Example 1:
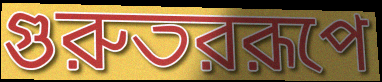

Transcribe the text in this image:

গুরুতররূপে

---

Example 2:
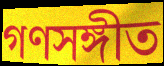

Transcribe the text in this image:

গণসঙ্গীত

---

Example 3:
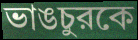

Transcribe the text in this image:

ভাঙচুরকে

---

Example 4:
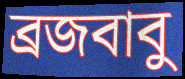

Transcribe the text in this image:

ব্রজবাবু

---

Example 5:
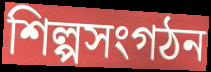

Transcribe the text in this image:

শিল্পসংগঠন